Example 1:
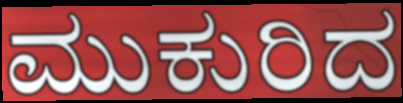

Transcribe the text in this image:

ಮುಕುರಿದ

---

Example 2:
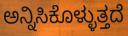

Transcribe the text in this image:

ಅನ್ನಿಸಿಕೊಳ್ಳುತ್ತದೆ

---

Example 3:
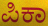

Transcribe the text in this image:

ಪಿಕಾ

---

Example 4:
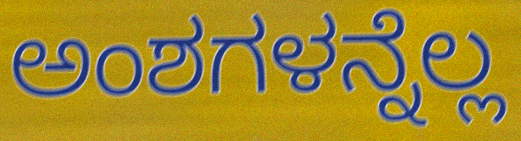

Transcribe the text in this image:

ಅಂಶಗಳನ್ನೆಲ್ಲ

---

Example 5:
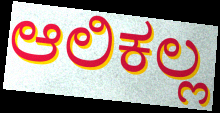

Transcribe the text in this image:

ಆಲಿಕಲ್ಲ